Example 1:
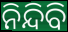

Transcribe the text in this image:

ନିନ୍ଦିବି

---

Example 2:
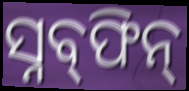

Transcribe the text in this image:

ସ୍ନବ୍‍ଫିନ୍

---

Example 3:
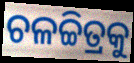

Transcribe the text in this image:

ଚଳଚ୍ଚିତ୍ରକୁ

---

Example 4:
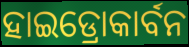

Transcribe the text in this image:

ହାଇଡ୍ରୋକାର୍ବନ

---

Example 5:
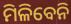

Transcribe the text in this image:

ମିଳିବେନି